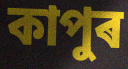
কাপুৰ